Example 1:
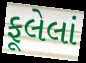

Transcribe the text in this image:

ફૂલેલાં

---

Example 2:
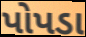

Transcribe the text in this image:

પોપડા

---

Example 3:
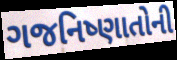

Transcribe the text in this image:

ગજનિષ્ણાતોની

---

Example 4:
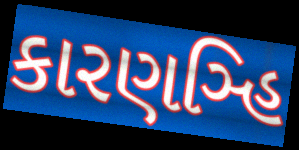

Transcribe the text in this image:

કારણઞ્હિ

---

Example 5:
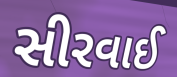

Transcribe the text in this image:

સીરવાઈ